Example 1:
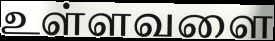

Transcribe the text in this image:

உள்ளவளை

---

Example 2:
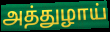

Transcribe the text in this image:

அத்துழாய்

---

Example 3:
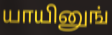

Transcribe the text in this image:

யாயினுங்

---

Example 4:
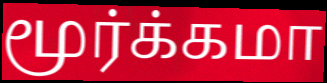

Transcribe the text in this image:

மூர்க்கமா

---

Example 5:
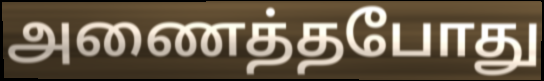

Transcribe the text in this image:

அணைத்தபோது